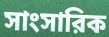
সাংসারিক